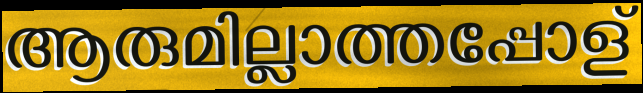
ആരുമില്ലാത്തപ്പോള്